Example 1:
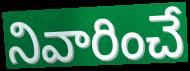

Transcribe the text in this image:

నివారించే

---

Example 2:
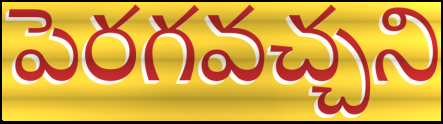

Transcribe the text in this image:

పెరగవచ్చని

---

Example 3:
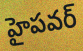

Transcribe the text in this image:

హైపవర్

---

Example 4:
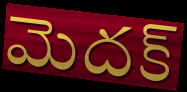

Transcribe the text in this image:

మెదక్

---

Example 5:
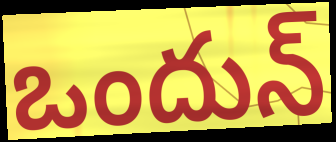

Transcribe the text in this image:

ఒందున్